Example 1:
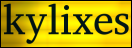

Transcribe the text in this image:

kylixes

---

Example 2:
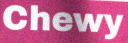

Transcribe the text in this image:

Chewy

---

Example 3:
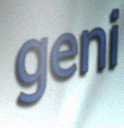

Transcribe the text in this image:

geni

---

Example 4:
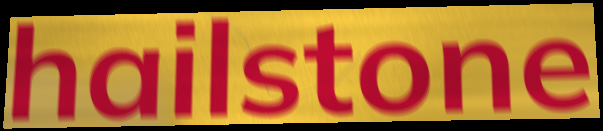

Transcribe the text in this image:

hailstone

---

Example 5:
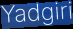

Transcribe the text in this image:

Yadgiri